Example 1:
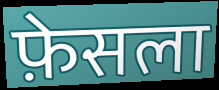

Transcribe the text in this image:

फ़ेसला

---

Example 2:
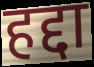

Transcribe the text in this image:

हद्दा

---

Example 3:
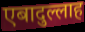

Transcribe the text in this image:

एबादुल्लाह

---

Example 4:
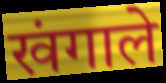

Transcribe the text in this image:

खंगाले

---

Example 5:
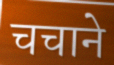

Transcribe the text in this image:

चचाने